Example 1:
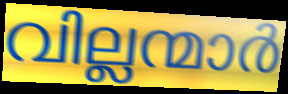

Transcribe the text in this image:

വില്ലന്മാർ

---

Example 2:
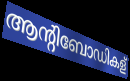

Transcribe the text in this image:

ആന്റിബോഡികള്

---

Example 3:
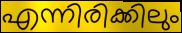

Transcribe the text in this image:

എന്നിരിക്കിലും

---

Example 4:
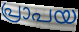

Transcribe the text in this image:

പ്രാപയ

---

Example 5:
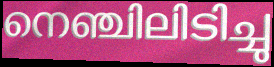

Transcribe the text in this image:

നെഞ്ചിലിടിച്ചു